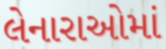
લેનારાઓમાં